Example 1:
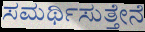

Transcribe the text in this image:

ಸಮರ್ಥಿಸುತ್ತೇನೆ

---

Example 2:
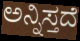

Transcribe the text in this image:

ಅನ್ನಿಸ್ತದೆ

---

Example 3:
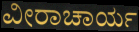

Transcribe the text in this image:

ವೀರಾಚಾರ್ಯ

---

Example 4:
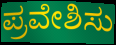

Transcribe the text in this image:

ಪ್ರವೇಶಿಸು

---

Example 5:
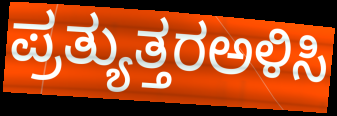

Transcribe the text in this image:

ಪ್ರತ್ಯುತ್ತರಅಳಿಸಿ